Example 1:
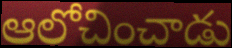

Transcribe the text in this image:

ఆలోచించాడు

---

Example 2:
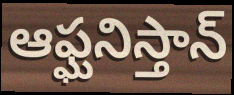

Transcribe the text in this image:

ఆఫ్ఘనిస్తాన్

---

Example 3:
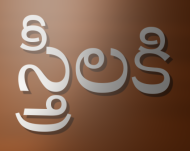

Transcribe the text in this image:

స్త్రీలకి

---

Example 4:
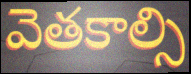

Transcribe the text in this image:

వెతకాల్సి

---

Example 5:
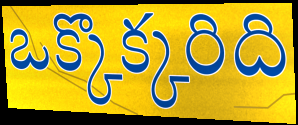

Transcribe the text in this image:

ఒక్కొక్కరిది